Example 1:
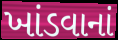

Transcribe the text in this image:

ખાંડવાનાં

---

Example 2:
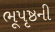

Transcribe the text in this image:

ભૂપૃષ્ઠની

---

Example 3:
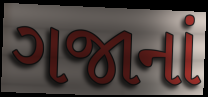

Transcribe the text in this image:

ગજાનાં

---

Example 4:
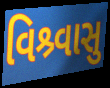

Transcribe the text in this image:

વિશ્ર્વાસુ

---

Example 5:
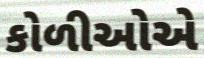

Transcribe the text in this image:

કોળીઓએ